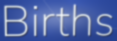
Births